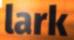
lark